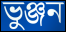
ভুঞ্জন